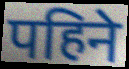
पहिने